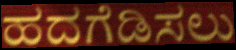
ಹದಗೆಡಿಸಲು